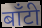
बाँटी